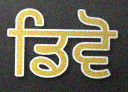
ਡਿਵੋ